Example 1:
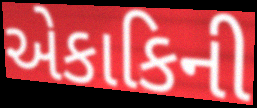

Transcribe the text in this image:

એકાકિની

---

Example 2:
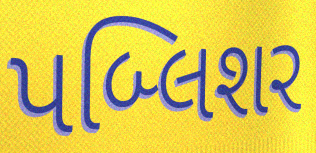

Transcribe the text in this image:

પબ્લિશર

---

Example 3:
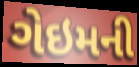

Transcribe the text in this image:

ગેઇમની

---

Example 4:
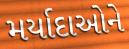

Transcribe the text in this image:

મર્યાદાઓને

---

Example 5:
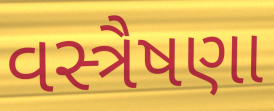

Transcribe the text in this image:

વસ્ત્રૈષણા